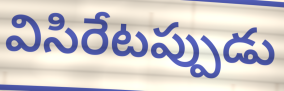
విసిరేటప్పుడు